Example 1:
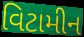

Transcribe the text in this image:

વિટામીન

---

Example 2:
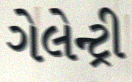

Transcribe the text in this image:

ગેલેન્ટ્રી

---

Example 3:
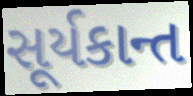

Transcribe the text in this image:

સૂર્યકાન્ત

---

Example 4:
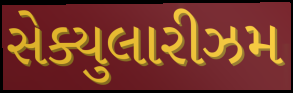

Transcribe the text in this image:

સેક્યુલારીઝમ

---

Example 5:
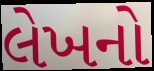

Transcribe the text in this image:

લેખનો